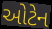
ઓટેન